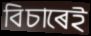
বিচাৰেই